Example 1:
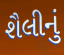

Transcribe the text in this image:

શૈલીનું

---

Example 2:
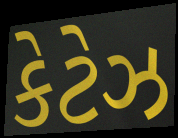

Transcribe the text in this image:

કેટેઝ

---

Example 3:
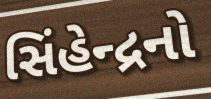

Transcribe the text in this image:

સિંહેન્દ્રનો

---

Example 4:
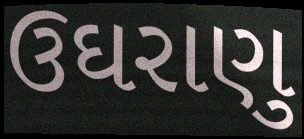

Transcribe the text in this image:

ઉઘરાણુ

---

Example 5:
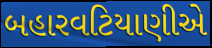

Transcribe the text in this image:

બહારવટિયાણીએ